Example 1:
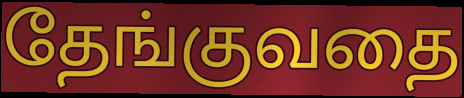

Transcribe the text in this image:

தேங்குவதை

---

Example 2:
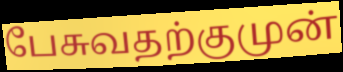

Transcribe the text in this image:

பேசுவதற்குமுன்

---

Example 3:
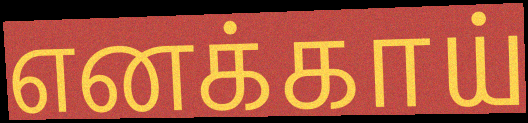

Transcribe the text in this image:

எனக்காய்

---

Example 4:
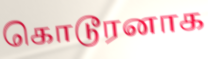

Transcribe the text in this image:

கொடூரனாக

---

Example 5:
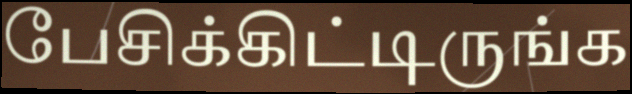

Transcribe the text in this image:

பேசிக்கிட்டிருங்க